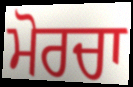
ਮੋਰਚਾ